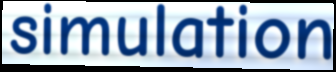
simulation